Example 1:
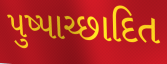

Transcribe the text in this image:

પુષ્પાચ્છાદિત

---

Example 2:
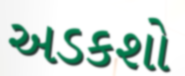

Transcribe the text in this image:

અડકશો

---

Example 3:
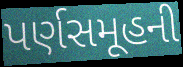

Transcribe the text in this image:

પર્ણસમૂહની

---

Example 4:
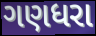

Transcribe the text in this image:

ગણધરા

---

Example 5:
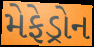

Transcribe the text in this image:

મેફેડ્રોન